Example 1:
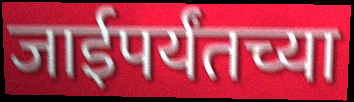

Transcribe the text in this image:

जाईपर्यंतच्या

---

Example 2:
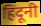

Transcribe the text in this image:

हिंदूनी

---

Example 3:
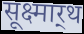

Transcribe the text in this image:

सूक्ष्मार्थ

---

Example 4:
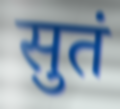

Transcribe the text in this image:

सुतं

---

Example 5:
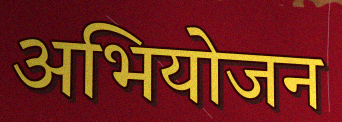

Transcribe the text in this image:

अभियोजन